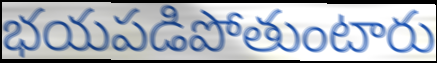
భయపడిపోతుంటారు